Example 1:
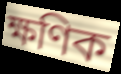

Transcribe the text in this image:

ক্ষণিক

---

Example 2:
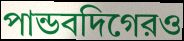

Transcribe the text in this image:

পান্ডবদিগেরও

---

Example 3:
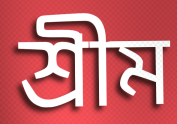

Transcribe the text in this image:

শ্রীম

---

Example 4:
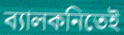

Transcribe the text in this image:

ব্যালকনিতেই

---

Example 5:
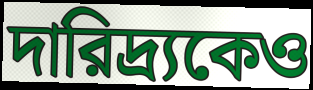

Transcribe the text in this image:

দারিদ্র্যকেও